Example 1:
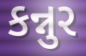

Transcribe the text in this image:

કન્નુર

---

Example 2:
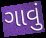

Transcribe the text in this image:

ગાવું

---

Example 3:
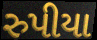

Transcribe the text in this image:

રુપીયા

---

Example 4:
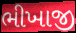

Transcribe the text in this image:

ભીખાજી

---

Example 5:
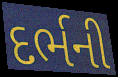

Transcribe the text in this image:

દર્ભની